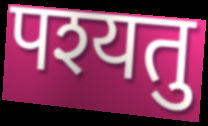
पश्यतु